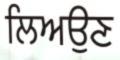
ਲਿਅਉਣ